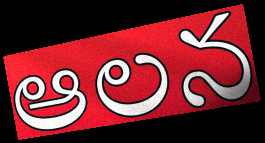
ఆలన